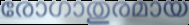
രോഗാതുരമായ